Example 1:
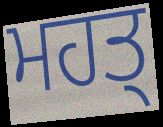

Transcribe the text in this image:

ਮਹਤ੍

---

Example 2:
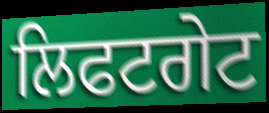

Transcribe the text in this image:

ਲਿਫਟਗੇਟ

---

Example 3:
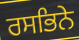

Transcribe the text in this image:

ਰਸਭਿਨੇ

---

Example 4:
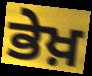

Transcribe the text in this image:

ਭੇਖ਼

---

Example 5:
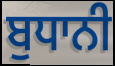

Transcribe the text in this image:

ਬੁਧਾਨੀ